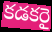
కడకరై